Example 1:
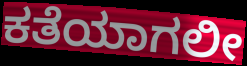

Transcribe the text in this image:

ಕತೆಯಾಗಲೀ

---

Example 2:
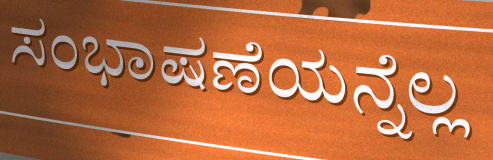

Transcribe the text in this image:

ಸಂಭಾಷಣೆಯನ್ನೆಲ್ಲ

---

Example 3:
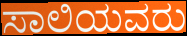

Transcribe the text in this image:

ಸಾಲಿಯವರು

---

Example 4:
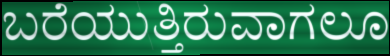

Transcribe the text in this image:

ಬರೆಯುತ್ತಿರುವಾಗಲೂ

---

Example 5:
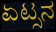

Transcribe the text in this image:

ಏಟ್ಸನ